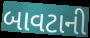
બાવટાની